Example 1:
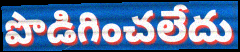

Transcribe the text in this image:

పొడిగించలేదు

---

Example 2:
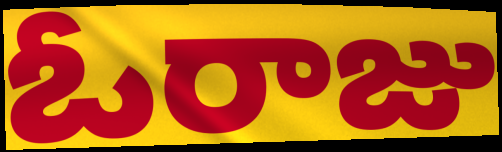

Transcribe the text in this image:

ఓరాజు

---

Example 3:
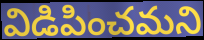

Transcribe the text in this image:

విడిపించమని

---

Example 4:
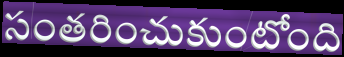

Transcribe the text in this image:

సంతరించుకుంటోంది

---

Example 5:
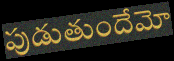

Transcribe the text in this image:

పుడుతుందేమో